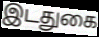
இடதுகை